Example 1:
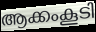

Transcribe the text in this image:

ആക്കംകൂടി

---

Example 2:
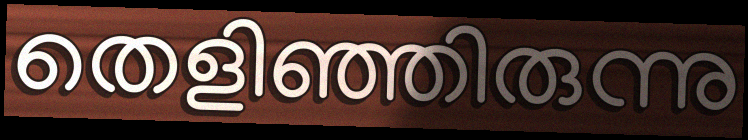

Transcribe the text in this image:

തെളിഞ്ഞിരുന്നു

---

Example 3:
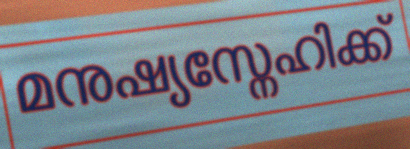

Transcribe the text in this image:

മനുഷ്യസ്നേഹിക്ക്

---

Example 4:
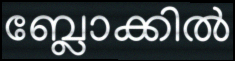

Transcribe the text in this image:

ബ്ലോക്കിൽ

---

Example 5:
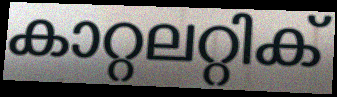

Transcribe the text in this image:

കാറ്റലറ്റിക്